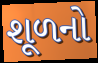
શૂળનો